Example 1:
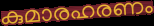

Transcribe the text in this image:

കുമാരഹരണം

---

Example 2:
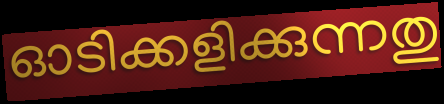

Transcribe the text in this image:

ഓടിക്കളിക്കുന്നതു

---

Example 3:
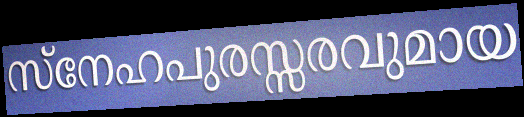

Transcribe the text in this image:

സ്നേഹപുരസ്സരവുമായ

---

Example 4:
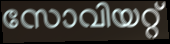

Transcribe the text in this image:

സോവിയറ്റ്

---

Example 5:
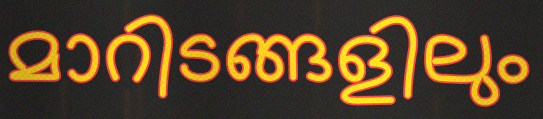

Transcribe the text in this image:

മാറിടങ്ങളിലും